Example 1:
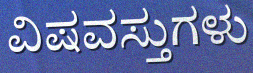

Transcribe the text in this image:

ವಿಷವಸ್ತುಗಳು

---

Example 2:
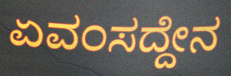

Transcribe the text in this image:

ಏವಂಸದ್ದೇನ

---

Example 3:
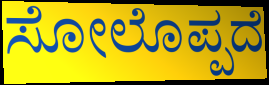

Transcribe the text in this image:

ಸೋಲೊಪ್ಪದೆ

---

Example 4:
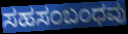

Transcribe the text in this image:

ಸಹಸಂಬಂಧವು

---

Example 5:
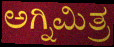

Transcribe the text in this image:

ಅಗ್ನಿಮಿತ್ರ